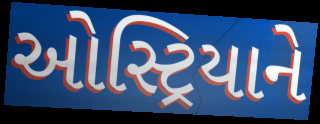
ઓસ્ટ્રિયાને